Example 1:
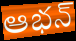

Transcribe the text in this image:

ఆభన్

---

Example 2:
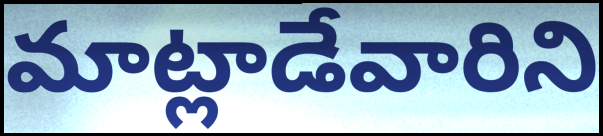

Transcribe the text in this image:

మాట్లాడేవారిని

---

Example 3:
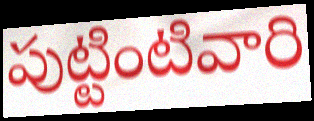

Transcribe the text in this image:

పుట్టింటివారి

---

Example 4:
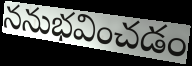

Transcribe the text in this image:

ననుభవించడం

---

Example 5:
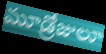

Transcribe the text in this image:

మూడ్రోజులూ